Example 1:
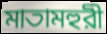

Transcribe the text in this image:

মাতামহুরী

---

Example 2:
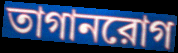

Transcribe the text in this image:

তাগানরোগ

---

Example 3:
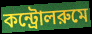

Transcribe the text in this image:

কন্ট্রোলরুমে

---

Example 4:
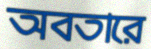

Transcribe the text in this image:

অবতারে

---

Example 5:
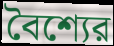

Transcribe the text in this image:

বৈশ্যের